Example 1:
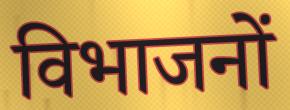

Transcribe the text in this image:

विभाजनों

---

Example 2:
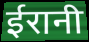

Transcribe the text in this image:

ईरानी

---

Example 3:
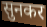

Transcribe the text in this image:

सुनकर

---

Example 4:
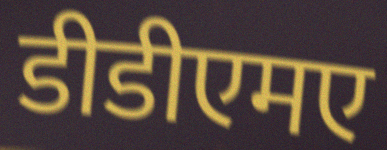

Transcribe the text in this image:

डीडीएमए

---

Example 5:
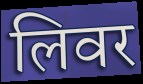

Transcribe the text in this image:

लिवर